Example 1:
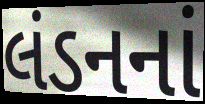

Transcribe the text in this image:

લંડનનાં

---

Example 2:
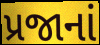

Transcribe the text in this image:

પ્રજાનાં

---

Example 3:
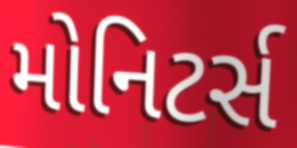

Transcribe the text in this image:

મોનિટર્સ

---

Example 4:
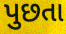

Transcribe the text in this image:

પુછતા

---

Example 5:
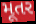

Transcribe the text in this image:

મૂતર